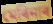
মেৰিনাৰ